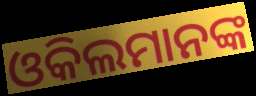
ଓକିଲମାନଙ୍କ